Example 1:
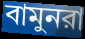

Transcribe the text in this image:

বামুনরা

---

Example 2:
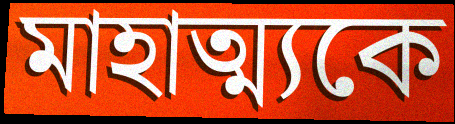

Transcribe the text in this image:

মাহাত্ম্যকে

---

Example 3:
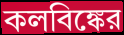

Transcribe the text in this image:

কলবিঙ্কের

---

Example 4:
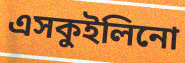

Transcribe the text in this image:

এসকুইলিনো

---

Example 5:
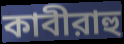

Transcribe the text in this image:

কাবীরাহু